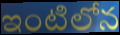
ఇంటిలోన